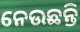
ନେଉଛନ୍ତି